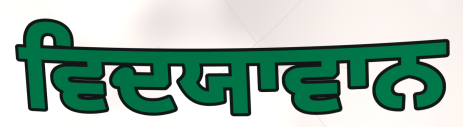
ਵਿਦਯਾਵਾਨ